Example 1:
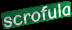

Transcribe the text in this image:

scrofula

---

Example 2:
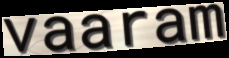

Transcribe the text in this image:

vaaram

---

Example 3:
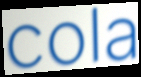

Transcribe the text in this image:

cola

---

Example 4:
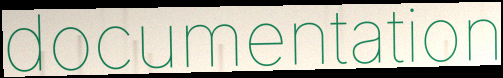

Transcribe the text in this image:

documentation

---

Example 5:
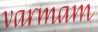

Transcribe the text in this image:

varmam